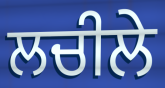
ਲਚੀਲੇ